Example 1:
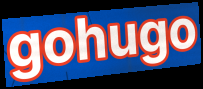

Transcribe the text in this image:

gohugo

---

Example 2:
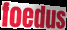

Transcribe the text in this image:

foedus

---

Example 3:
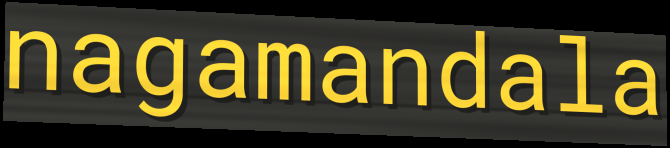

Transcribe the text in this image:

nagamandala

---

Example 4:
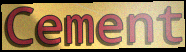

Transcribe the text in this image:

Cement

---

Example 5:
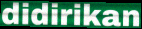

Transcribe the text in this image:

didirikan